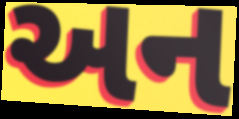
અન